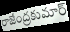
రాజేంద్రకుమార్